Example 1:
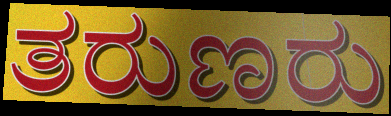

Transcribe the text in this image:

ತರುಣರು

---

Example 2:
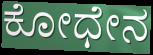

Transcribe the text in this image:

ಕೋಧೇನ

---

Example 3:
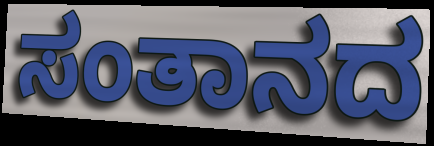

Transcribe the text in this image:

ಸಂತಾನದ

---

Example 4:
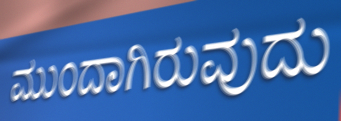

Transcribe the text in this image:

ಮುಂದಾಗಿರುವುದು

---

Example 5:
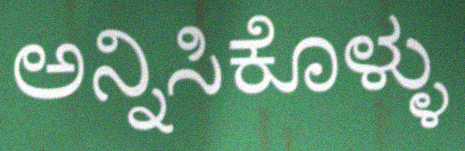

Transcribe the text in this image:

ಅನ್ನಿಸಿಕೊಳ್ಳು